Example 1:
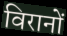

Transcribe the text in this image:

विरानों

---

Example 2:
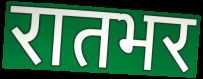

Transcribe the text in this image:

रातभर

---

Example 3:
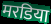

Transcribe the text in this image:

मरडिया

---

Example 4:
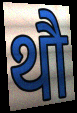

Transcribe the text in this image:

थौ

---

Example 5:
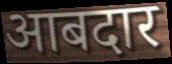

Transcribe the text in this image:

आबदार